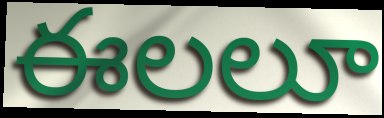
ఈలలూ